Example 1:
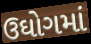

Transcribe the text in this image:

ઉઘોગમાં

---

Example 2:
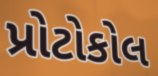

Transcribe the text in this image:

પ્રોટોકોલ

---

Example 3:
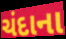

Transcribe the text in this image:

ચંદાના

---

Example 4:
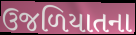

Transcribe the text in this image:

ઉજળિયાતના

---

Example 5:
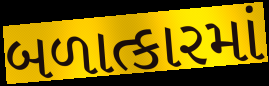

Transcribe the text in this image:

બળાત્કારમાં